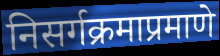
निसर्गक्रमाप्रमाणे